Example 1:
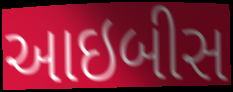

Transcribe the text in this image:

આઇબીસ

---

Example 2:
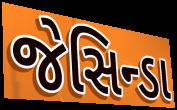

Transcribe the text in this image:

જેસિન્ડા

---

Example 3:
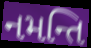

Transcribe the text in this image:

નમન્તિ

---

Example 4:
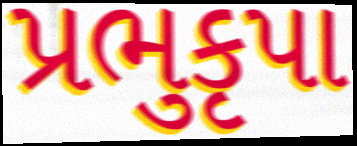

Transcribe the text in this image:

પ્રભુકૃપા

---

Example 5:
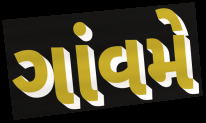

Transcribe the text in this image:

ગાંવમે